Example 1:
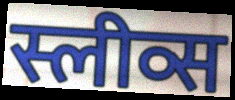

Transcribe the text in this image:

स्लीव्स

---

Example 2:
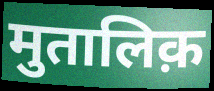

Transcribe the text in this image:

मुतालिक़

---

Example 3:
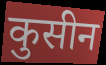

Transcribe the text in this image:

कुसीन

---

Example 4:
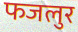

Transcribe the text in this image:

फजलुर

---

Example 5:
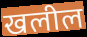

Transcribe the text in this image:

खलील